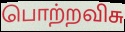
பொற்றவிசு